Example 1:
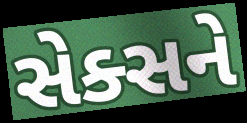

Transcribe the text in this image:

સેક્સને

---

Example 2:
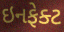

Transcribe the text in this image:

ઇનફેક્ટ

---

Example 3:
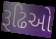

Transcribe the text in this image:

રૂઢિઓ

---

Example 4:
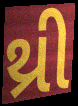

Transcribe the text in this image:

થ્રી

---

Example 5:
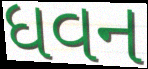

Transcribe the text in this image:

ધવન